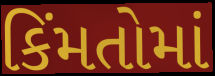
કિંમતોમાં